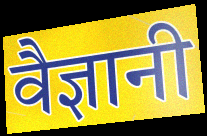
वैज्ञानी